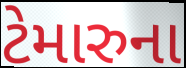
ટેમારુના